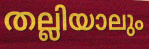
തല്ലിയാലും